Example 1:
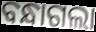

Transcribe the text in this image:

ବନ୍ଧାଗଲା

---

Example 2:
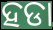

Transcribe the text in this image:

ହଡା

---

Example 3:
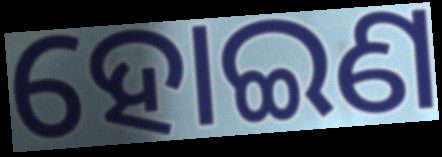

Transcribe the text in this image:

ହୋଇଣ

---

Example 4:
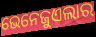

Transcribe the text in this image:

ଭେନେଜୁଏଲାର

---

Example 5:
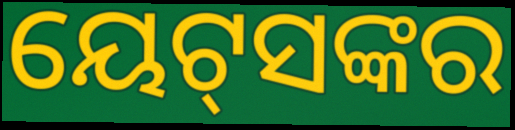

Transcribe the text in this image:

ୟେଟ୍‌ସଙ୍କର